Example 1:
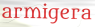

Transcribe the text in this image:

armigera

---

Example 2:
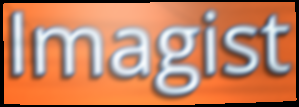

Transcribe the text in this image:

Imagist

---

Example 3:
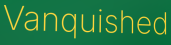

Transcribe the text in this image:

Vanquished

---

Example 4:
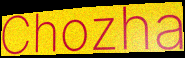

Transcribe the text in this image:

Chozha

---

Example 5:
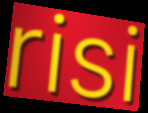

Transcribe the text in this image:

risi